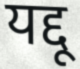
यद्दू